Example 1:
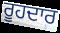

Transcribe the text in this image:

ਰੂਹਦਾਰ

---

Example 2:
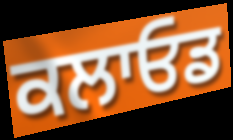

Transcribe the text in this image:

ਕਲਾਓਡ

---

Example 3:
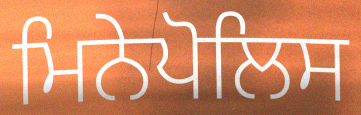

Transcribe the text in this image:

ਮਿਨੇਪੋਲਿਸ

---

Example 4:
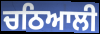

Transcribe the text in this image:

ਚਠਿਆਲੀ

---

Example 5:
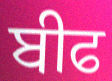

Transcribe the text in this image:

ਬੀਫ